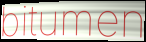
bitumen